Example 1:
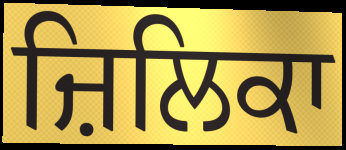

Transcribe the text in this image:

ਜ਼ਿਲਿਕਾ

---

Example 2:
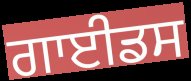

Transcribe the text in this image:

ਗਾਈਡਸ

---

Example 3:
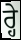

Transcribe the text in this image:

ਰ੍ਹੇ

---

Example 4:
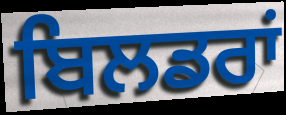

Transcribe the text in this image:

ਬਿਲਡਰਾਂ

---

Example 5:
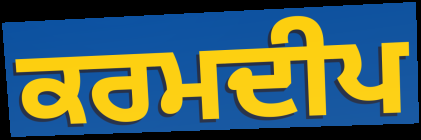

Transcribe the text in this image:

ਕਰਮਦੀਪ